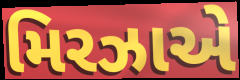
મિરઝાએ